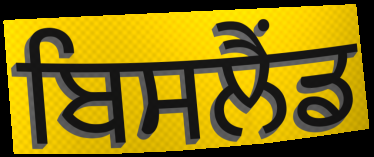
ਬਿਸਲੈਂਡ